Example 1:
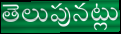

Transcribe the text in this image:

తెలుపునట్లు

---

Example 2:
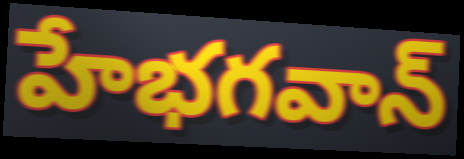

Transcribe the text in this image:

హేభగవాన్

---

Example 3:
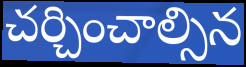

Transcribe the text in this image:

చర్చించాల్సిన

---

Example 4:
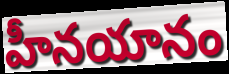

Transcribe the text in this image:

హీనయానం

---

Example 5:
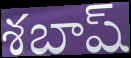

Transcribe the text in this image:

శబాష్